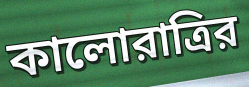
কালোরাত্রির